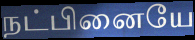
நட்பினையே